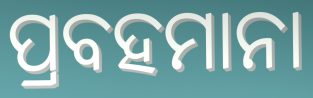
ପ୍ରବହମାନା